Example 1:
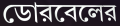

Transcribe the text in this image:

ডোরবেলের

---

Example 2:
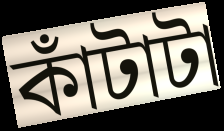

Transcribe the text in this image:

কাঁটাটা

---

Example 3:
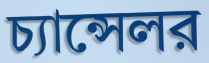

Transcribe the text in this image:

চ্যান্সেলর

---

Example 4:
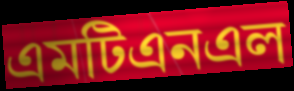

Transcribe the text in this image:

এমটিএনএল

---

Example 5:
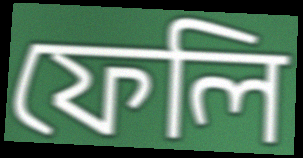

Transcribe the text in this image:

ফেলি